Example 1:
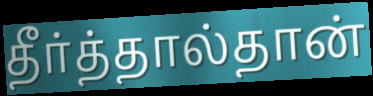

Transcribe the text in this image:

தீர்த்தால்தான்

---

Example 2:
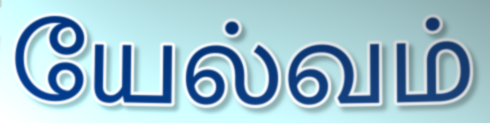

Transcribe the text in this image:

யேல்வம்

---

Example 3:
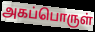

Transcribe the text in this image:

அகப்பொருள்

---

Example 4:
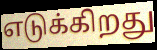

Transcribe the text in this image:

எடுக்கிறது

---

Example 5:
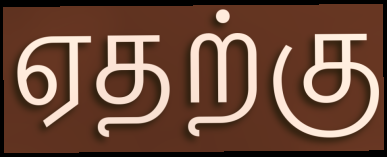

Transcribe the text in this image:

ஏதற்கு